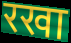
रखा